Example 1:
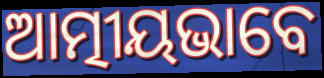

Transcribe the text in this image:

ଆତ୍ମୀୟଭାବେ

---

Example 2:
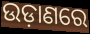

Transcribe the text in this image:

ଉଡ଼ାଣରେ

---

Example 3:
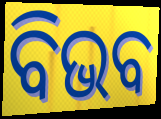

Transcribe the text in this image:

ବିଭବ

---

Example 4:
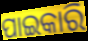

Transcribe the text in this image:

ପାଇକାରି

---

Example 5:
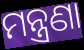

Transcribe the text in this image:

ମନ୍ତ୍ରଣା